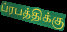
ப்ரபத்திக்கு